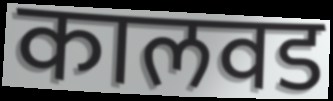
कालवड